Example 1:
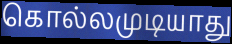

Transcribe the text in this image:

கொல்லமுடியாது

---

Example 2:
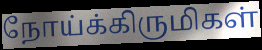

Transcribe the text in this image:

நோய்க்கிருமிகள்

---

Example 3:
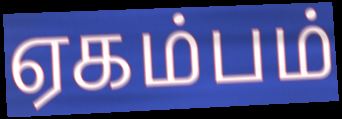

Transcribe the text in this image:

ஏகம்பம்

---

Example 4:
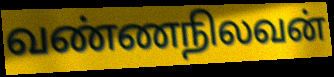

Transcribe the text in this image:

வண்ணநிலவன்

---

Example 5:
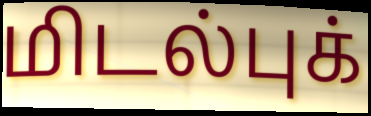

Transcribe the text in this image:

மிடல்புக்